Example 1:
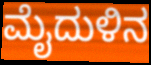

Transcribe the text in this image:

ಮೈದುಳಿನ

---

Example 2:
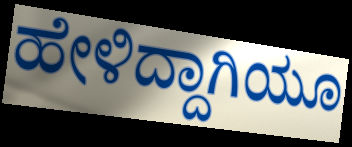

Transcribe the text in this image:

ಹೇಳಿದ್ದಾಗಿಯೂ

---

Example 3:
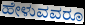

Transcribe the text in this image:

ಹೇಳುವವರೂ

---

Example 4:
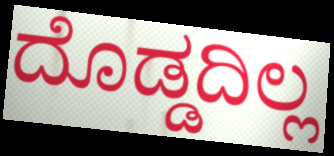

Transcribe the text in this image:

ದೊಡ್ಡದಿಲ್ಲ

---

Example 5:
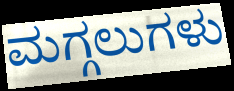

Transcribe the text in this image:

ಮಗ್ಗಲುಗಳು